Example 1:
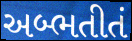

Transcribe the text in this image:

અબ્ભતીતં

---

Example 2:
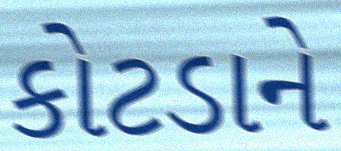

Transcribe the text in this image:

કોટડાને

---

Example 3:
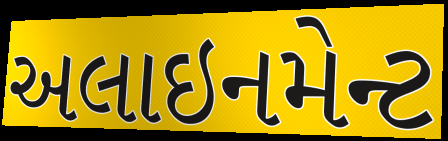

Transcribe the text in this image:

અલાઇનમેન્ટ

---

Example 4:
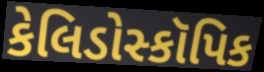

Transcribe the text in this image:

કેલિડોસ્કૉપિક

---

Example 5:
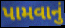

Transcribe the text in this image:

પામવાનું